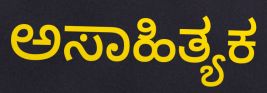
ಅಸಾಹಿತ್ಯಕ